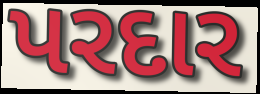
પરદાર